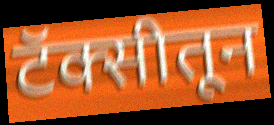
टॅक्‍सीतून